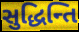
સુદ્ધિન્તિ